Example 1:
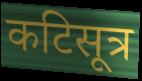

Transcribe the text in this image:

कटिसूत्र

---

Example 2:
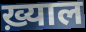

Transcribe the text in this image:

ख़्याल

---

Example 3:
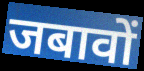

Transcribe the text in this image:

जबावों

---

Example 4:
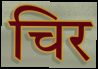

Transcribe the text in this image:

चिर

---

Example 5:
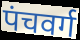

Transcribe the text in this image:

पंचवर्ग